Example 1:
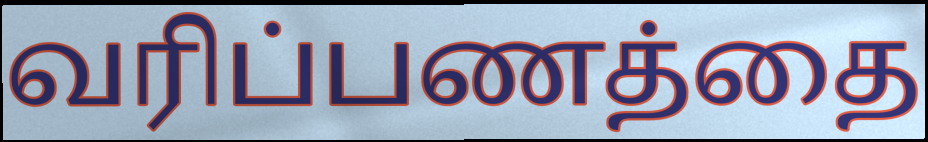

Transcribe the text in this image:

வரிப்பணத்தை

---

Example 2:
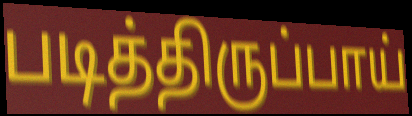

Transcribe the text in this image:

படித்திருப்பாய்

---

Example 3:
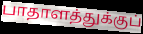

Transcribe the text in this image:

பாதாளத்துக்குப்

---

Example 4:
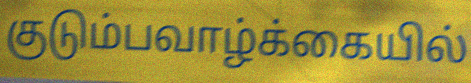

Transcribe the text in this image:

குடும்பவாழ்க்கையில்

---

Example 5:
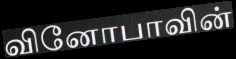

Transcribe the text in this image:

வினோபாவின்